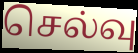
செல்வு